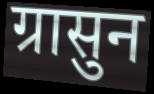
ग्रासुन